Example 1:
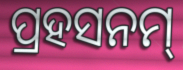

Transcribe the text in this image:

ପ୍ରହସନମ୍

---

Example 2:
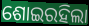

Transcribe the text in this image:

ଶୋଇରହିଲା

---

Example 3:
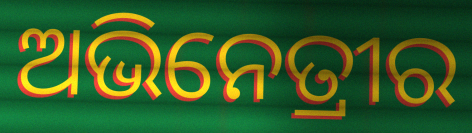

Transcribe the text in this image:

ଅଭିନେତ୍ରୀର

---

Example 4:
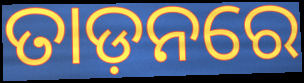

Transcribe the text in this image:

ତାଡ଼ନରେ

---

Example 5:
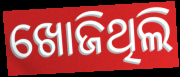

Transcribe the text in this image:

ଖୋଜିଥିଲି